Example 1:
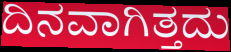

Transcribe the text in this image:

ದಿನವಾಗಿತ್ತದು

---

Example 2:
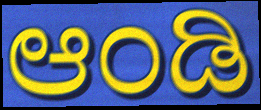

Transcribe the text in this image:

ಆಂಡಿ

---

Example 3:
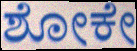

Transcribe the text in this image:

ಶೋಕೇ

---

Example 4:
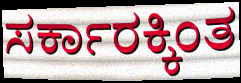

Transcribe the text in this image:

ಸರ್ಕಾರಕ್ಕಿಂತ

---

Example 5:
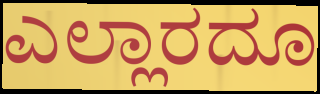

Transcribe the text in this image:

ಎಲ್ಲಾರದೂ